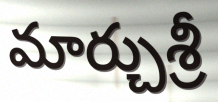
మార్చుశ్రీ